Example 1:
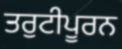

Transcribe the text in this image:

ਤਰੁਟੀਪੂਰਨ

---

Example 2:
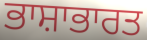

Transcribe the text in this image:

ਭਾਸ਼ਾਭਾਰਤ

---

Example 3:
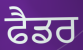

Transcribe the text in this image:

ਫੈਡਰ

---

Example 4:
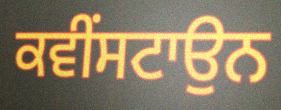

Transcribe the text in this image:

ਕਵੀਂਸਟਾਉਨ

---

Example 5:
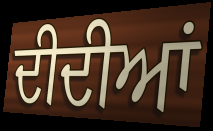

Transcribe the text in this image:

ਦੀਦੀਆਂ